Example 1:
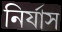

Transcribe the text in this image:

নিৰ্যাস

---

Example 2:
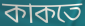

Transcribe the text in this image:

কাকতে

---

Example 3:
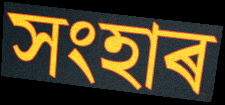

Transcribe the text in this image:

সংহাৰ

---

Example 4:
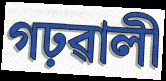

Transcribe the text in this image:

গঢ়ৱালী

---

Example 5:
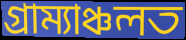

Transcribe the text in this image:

গ্ৰাম্যাঞ্চলত